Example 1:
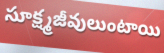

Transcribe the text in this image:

సూక్ష్మజీవులుంటాయి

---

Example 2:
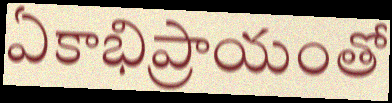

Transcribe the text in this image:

ఏకాభిప్రాయంతో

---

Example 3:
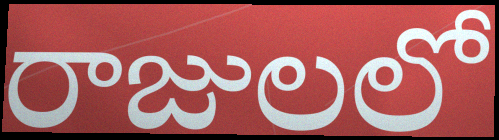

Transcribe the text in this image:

రాజులలో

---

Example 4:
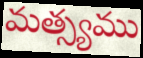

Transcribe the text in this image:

మత్స్యము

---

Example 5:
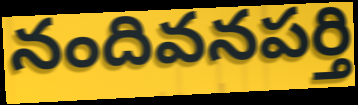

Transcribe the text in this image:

నందివనపర్తి